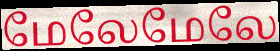
மேலேமேலே